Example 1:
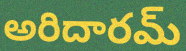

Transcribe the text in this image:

అరిదారమ్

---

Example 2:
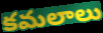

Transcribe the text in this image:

కమలాలు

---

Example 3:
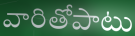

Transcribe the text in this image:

వారితోపాటు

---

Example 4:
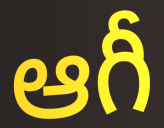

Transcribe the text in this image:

ఆగీ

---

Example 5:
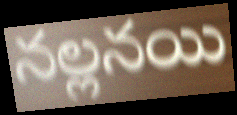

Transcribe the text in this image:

నల్లనయి